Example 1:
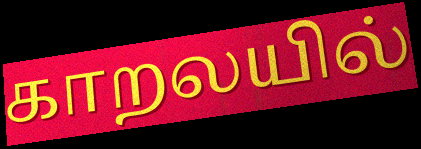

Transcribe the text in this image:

காறலயில்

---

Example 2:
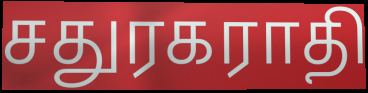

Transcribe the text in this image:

சதுரகராதி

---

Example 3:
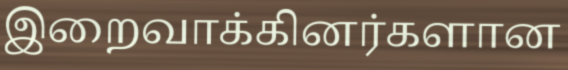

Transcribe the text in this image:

இறைவாக்கினர்களான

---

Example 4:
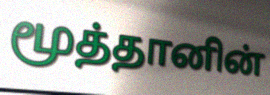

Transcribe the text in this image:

மூத்தானின்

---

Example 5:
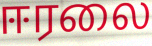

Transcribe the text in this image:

ஈரலை